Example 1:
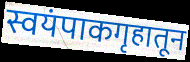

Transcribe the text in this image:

स्वयंपाकगृहातून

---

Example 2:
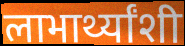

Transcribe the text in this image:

लाभार्थ्यांशी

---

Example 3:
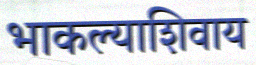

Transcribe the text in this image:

भाकल्याशिवाय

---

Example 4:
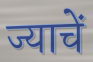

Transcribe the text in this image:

ज्याचें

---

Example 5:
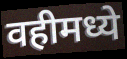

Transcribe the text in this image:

वहीमध्ये